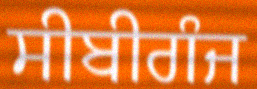
ਸੀਬੀਗੰਜ